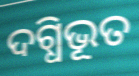
ଦଗ୍ଧିଭୂତ